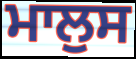
ਮਾਲੁਸ